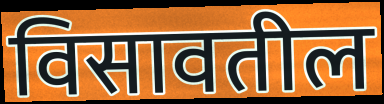
विसावतील